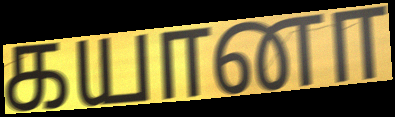
கயானா